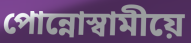
পোন্নোস্বামীয়ে